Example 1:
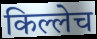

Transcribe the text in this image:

किल्लेच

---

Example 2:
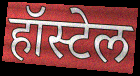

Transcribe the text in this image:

हॉस्टेल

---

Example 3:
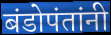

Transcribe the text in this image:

बंडोपंतांनी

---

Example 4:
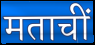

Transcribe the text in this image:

मताचीं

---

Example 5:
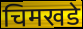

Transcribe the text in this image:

चिमखडे